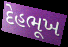
દેહભૂખ